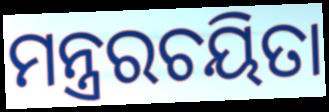
ମନ୍ତ୍ରରଚୟିତା